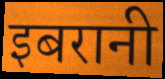
इबरानी